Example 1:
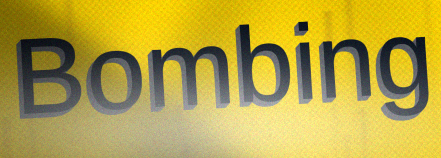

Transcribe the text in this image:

Bombing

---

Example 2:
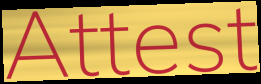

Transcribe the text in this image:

Attest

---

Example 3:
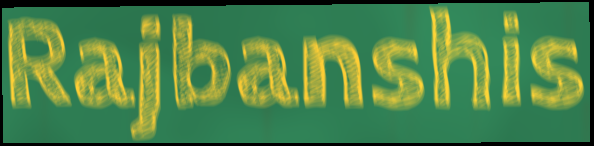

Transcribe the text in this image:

Rajbanshis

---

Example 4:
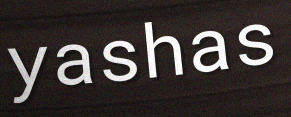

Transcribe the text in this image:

yashas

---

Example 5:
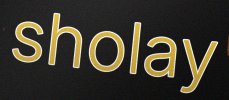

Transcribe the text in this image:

sholay